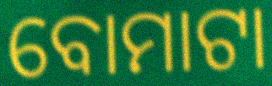
ବୋମାଟା